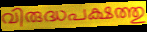
വിരുദ്ധപക്ഷത്തു